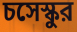
চসেস্কুর